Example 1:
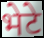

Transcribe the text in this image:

भेटे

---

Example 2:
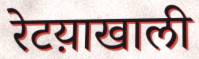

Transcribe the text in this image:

रेटय़ाखाली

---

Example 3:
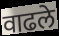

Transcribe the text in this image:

वाढले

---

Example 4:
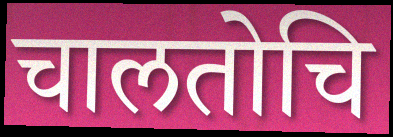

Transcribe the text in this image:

चालतोचि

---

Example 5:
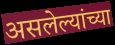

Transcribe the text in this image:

असलेल्यांच्या